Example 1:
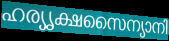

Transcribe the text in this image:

ഹര്യൃക്ഷസൈന്യാനി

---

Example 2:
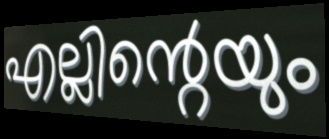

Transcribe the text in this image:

എല്ലിന്റെയും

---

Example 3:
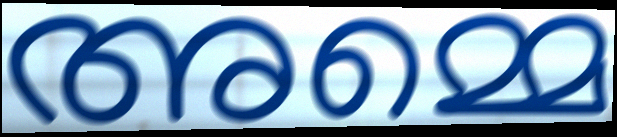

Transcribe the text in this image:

അമ്മെ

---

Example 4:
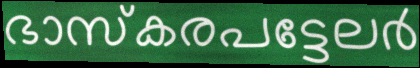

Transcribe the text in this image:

ഭാസ്കരപട്ടേലർ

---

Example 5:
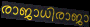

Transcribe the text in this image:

രാജാധിരാജാ